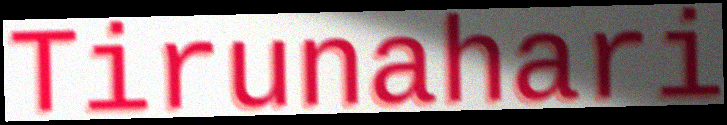
Tirunahari